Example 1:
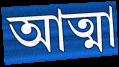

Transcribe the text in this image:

আত্মা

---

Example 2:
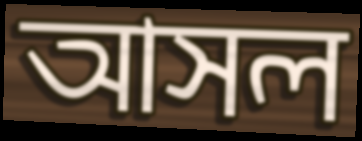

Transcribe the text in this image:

আসল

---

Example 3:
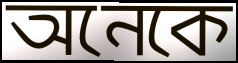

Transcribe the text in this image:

অনেকে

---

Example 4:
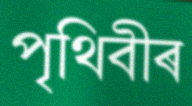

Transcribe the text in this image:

পৃথিবীৰ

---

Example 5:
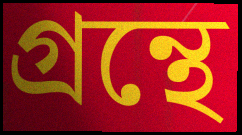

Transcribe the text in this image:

গ্ৰন্থে